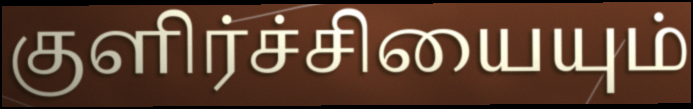
குளிர்ச்சியையும்